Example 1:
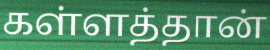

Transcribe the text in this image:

கள்ளத்தான்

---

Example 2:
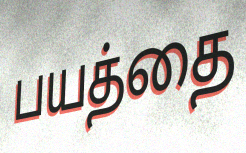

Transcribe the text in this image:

பயத்தை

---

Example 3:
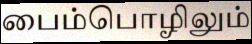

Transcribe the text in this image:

பைம்பொழிலும்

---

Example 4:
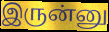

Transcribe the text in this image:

இருன்னு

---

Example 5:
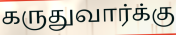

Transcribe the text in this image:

கருதுவார்க்கு